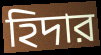
হিদার